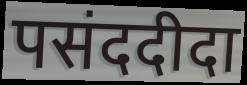
पसंददीदा